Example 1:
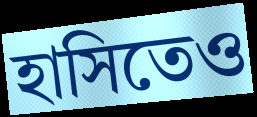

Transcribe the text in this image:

হাসিতেও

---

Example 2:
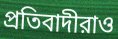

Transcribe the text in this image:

প্রতিবাদীরাও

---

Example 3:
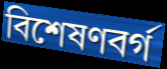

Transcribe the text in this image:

বিশেষণবর্গ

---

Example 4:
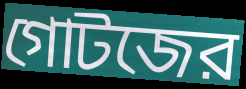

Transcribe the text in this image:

গোটজের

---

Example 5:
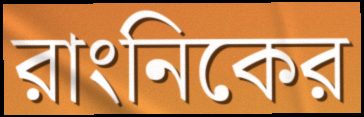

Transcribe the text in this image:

রাংনিকের